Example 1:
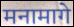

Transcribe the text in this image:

मनामागे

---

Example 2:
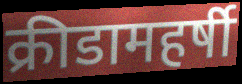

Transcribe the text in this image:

क्रीडामहर्षी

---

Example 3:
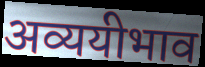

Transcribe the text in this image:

अव्ययीभाव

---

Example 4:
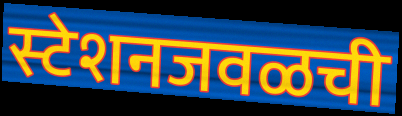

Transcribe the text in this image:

स्टेशनजवळची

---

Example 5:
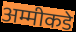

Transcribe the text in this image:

अम्मीकडे